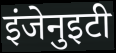
इंजेनुइटी